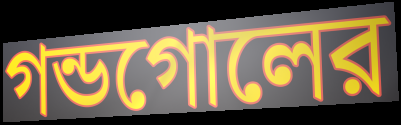
গন্ডগোলের